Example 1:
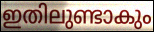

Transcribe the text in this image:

ഇതിലുണ്ടാകും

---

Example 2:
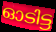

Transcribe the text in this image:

ഓടിട്ട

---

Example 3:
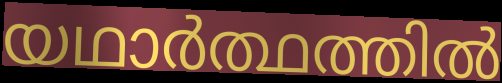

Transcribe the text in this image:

യഥാർത്ഥത്തിൽ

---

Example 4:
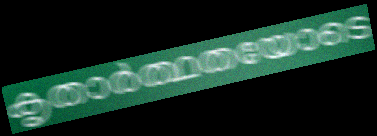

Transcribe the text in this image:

കൃതാർത്ഥതയോടെ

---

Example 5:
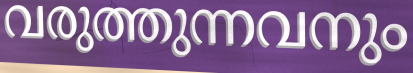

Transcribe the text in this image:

വരുത്തുന്നവനും